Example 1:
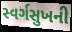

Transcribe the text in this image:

સ્વર્ગસુખની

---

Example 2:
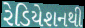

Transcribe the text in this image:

રેડિયેશનથી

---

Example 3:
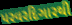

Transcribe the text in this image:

પરવરદિગારથી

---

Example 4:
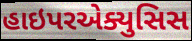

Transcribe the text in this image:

હાઇપરએક્યુસિસ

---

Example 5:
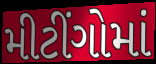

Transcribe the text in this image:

મીટીંગોમાં